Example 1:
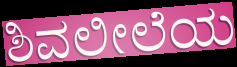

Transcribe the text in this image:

ಶಿವಲೀಲೆಯ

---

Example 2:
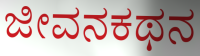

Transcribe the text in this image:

ಜೀವನಕಥನ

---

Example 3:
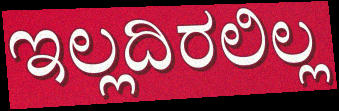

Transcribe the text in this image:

ಇಲ್ಲದಿರಲಿಲ್ಲ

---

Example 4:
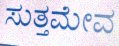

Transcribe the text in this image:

ಸುತ್ತಮೇವ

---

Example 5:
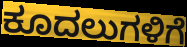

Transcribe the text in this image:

ಕೂದಲುಗಳಿಗೆ